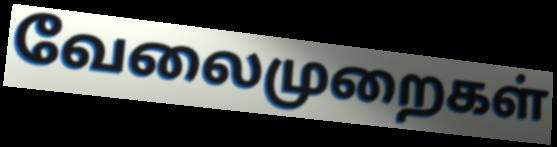
வேலைமுறைகள்